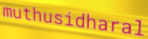
muthusidharal